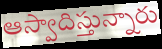
ఆస్వాదిస్తున్నారు